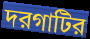
দরগাটির